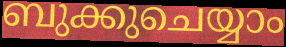
ബുക്കുചെയ്യാം